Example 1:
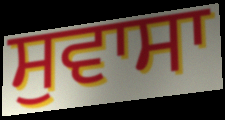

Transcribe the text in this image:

ਸੁਵਾਸਾ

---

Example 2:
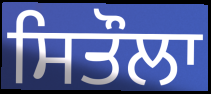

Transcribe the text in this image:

ਸਿਤੌਲਾ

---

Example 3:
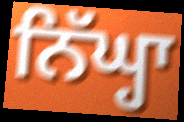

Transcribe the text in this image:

ਨਿੱਘ੍ਹਾ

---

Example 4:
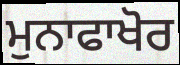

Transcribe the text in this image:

ਮੁਨਾਫਾਖੋਰ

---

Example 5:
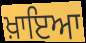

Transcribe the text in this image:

ਖ਼ਾਇਆ